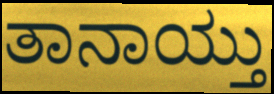
ತಾನಾಯ್ತು